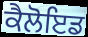
ਕੈਲੋਇਡ